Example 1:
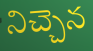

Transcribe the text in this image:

నిచ్చెన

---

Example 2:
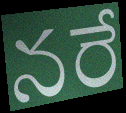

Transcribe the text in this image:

నరే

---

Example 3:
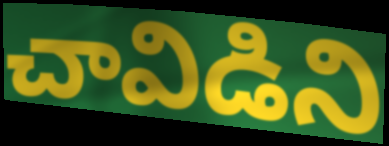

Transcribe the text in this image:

చావిడిని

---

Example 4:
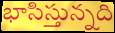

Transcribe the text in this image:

భాసిస్తున్నది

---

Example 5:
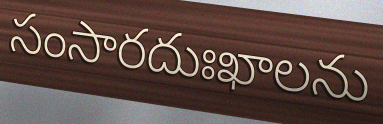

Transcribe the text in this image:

సంసారదుఃఖాలను